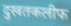
दुखतकलीफ